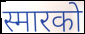
स्मारको